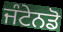
ਜੰਟੇਨਡੋ